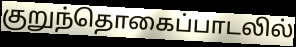
குறுந்தொகைப்பாடலில்